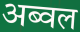
अब्वल